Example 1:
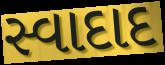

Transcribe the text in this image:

સ્વાદાદ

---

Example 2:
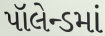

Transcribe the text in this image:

પૉલેન્ડમાં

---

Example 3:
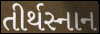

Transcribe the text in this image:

તીર્થસ્નાન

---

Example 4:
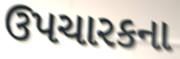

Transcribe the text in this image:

ઉપચારકના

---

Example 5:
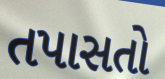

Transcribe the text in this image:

તપાસતો